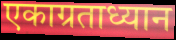
एकाग्रताध्यान